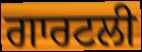
ਗਾਰਟਲੀ